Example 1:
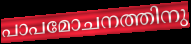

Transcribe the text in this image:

പാപമോചനത്തിനു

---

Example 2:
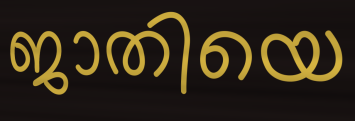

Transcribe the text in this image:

ജാതിയെ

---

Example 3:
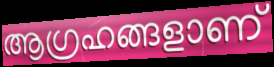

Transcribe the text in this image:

ആഗ്രഹങ്ങളാണ്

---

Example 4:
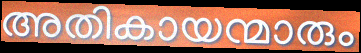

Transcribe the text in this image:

അതികായന്മാരും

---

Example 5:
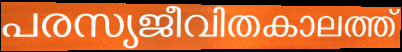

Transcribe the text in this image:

പരസ്യജീവിതകാലത്ത്